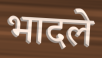
भादले